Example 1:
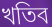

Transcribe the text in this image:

খতিব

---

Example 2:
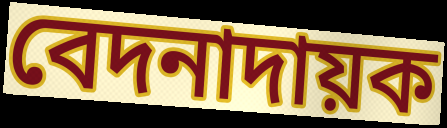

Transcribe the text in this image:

বেদনাদায়ক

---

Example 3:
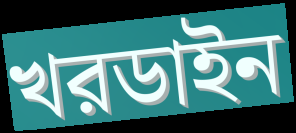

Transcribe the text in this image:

খরডাইন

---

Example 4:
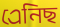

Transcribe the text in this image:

এেনিছ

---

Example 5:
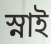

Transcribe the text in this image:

স্নাই